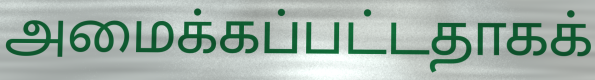
அமைக்கப்பட்டதாகக்